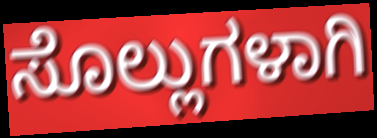
ಸೊಲ್ಲುಗಳಾಗಿ